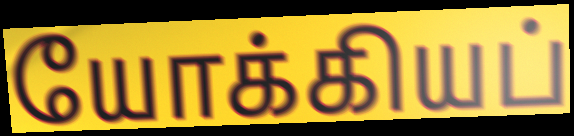
யோக்கியப்